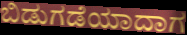
ಬಿಡುಗಡೆಯಾದಾಗ